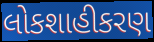
લોકશાહીકરણ